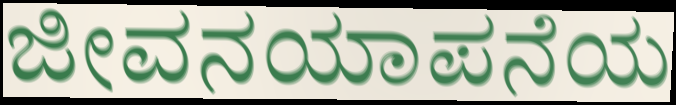
ಜೀವನಯಾಪನೆಯ